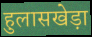
हुलासखेड़ा